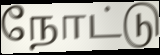
நோட்டு